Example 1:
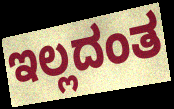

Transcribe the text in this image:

ಇಲ್ಲದಂತ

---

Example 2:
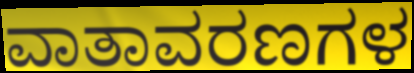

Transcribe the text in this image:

ವಾತಾವರಣಗಳ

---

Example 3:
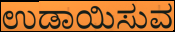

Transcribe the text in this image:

ಉಡಾಯಿಸುವ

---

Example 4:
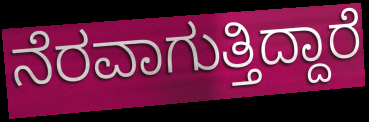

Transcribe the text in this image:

ನೆರವಾಗುತ್ತಿದ್ದಾರೆ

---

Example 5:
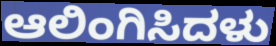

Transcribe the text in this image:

ಆಲಿಂಗಿಸಿದಳು